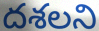
దశలని